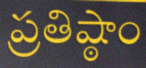
ప్రతిష్ఠాం